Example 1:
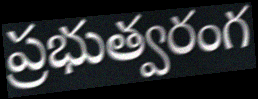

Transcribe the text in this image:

ప్రభుత్వరంగ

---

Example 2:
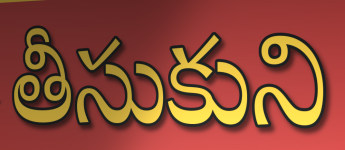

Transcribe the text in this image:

తీసుకుని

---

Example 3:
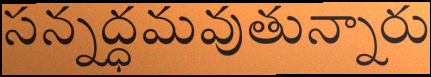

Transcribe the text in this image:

సన్నద్ధమవుతున్నారు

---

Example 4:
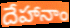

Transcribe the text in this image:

దేహానాం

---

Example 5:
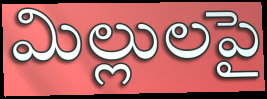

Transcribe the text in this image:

మిల్లులపై